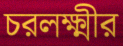
চরলক্ষ্মীর